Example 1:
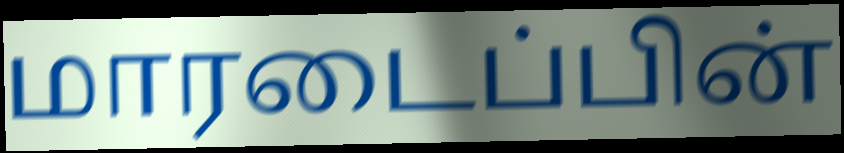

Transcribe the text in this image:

மாரடைப்பின்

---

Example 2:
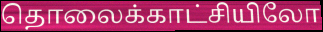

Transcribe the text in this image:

தொலைக்காட்சியிலோ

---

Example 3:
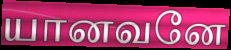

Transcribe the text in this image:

யானவனே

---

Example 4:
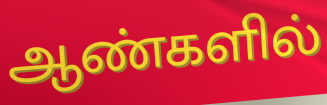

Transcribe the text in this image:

ஆண்களில்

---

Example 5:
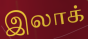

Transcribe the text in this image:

இலாக்